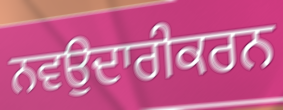
ਨਵਉਦਾਰੀਕਰਨ